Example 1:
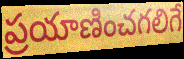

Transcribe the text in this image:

ప్రయాణించగలిగే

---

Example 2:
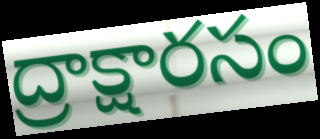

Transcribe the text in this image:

ద్రాక్షారసం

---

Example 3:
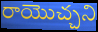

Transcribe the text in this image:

రాయొచ్చని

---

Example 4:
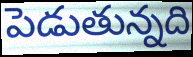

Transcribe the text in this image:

పెడుతున్నది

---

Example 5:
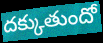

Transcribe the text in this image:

దక్కుతుందో